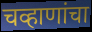
चव्हाणांचा